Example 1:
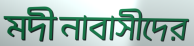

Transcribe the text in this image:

মদীনাবাসীদের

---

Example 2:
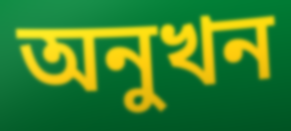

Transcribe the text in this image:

অনুখন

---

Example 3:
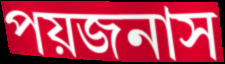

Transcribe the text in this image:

পয়জনাস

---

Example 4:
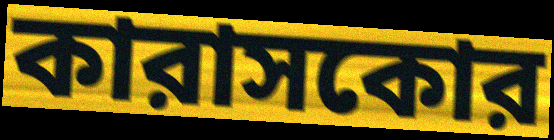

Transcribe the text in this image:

কারাসকোর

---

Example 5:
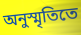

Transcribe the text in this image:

অনুস্মৃতিতে